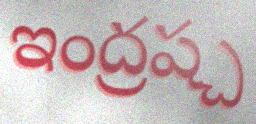
ఇంద్రష్చ